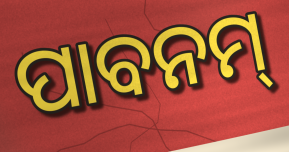
ପାବନମ୍